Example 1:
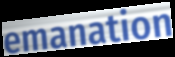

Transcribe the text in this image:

emanation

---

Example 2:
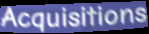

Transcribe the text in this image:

Acquisitions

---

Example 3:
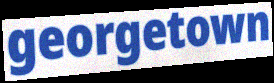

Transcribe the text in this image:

georgetown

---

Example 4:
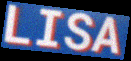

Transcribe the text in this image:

LISA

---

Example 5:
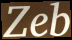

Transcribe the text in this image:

Zeb